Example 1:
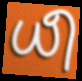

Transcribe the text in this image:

ധീ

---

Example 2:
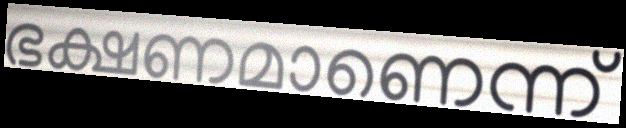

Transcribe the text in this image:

ഭക്ഷണമാണെന്ന്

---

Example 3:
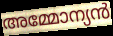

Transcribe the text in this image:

അമ്മോന്യൻ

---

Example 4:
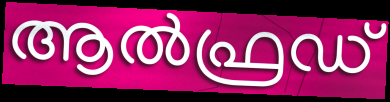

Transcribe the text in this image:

ആൽഫ്രഡ്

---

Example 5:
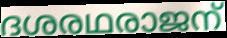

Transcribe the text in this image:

ദശരഥരാജന്